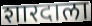
शारदाला